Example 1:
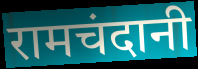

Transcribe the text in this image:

रामचंदानी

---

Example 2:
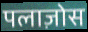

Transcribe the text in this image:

पलाज़ोस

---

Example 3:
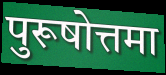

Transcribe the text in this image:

पुरूषोत्तमा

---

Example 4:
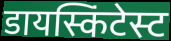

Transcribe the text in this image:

डायस्किंटेस्ट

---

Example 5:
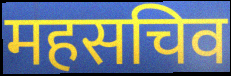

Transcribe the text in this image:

महसचिव